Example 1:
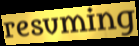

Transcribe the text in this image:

resuming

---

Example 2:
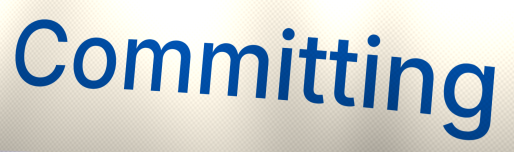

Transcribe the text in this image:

Committing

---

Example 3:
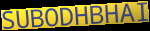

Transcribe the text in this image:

SUBODHBHAI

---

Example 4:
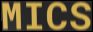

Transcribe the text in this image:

MICS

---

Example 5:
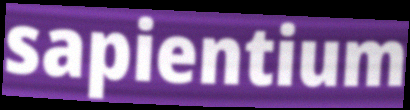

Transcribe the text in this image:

sapientium